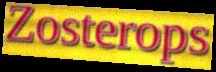
Zosterops